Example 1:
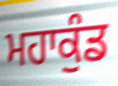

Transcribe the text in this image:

ਮਹਾਕੁੰਡ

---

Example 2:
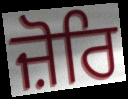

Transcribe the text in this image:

ਜ਼ੋਰਿ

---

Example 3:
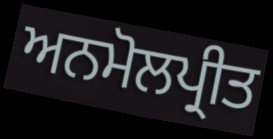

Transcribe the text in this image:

ਅਨਮੋਲਪ੍ਰੀਤ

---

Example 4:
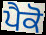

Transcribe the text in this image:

ਪੈਕੋ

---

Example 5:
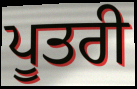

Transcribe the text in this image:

ਪੂਤਰੀ